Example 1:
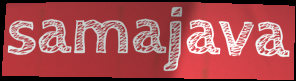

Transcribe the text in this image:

samajava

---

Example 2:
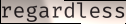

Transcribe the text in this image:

regardless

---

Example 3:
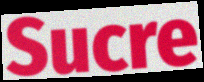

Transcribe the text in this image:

Sucre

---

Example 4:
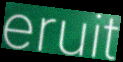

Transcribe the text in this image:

eruit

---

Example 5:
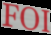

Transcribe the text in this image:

FOI